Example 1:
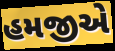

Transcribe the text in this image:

હમજીએ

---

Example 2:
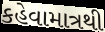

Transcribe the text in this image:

કહેવામાત્રથી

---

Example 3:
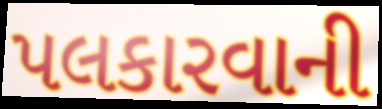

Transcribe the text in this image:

પલકારવાની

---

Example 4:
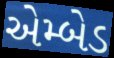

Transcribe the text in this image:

એમ્બેડ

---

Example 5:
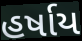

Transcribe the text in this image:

હર્ષાય